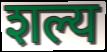
शल्य